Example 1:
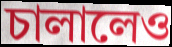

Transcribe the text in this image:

চালালেও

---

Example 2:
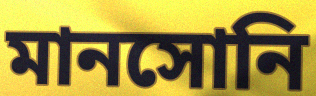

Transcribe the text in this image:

মানসোনি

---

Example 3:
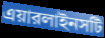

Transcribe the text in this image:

এয়ারলাইনসটি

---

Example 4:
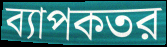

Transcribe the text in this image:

ব্যাপকতর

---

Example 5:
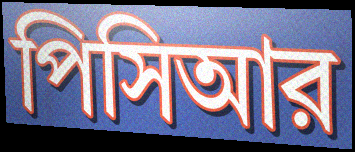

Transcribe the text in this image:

পিসিআর